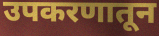
उपकरणातून